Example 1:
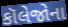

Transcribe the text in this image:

કૉલેજોના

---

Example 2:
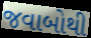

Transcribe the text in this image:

જવાબોથી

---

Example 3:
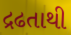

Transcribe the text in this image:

દ્રઢતાથી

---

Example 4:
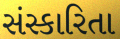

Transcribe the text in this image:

સંસ્કારિતા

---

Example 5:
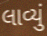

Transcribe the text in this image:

લાવ્યું